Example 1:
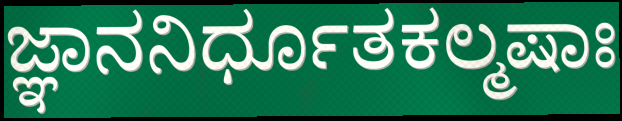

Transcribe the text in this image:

ಜ್ಞಾನನಿರ್ಧೂತಕಲ್ಮಷಾಃ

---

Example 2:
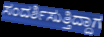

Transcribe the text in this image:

ಸಂದರ್ಶಿಸುತ್ತಿದ್ದಾಗ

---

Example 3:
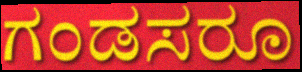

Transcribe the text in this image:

ಗಂಡಸರೂ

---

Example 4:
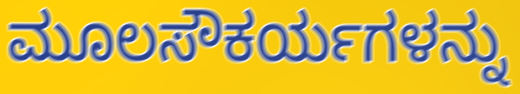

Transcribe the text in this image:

ಮೂಲಸೌಕರ್ಯಗಳನ್ನು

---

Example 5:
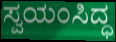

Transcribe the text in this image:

ಸ್ವಯಂಸಿದ್ಧ